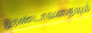
இரண்டாவதையும்